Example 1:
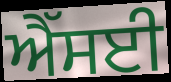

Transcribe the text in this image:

ਐੱਸਈ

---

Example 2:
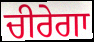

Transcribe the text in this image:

ਚੀਰੇਗਾ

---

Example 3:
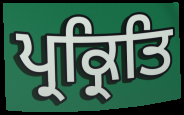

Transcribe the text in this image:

ਪ੍ਰਕ੍ਰਿਤਿ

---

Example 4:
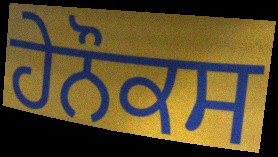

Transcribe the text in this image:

ਹੇਨੌਕਸ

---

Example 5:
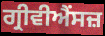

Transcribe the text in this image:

ਗ੍ਰੀਵੀਐਂਸਜ਼